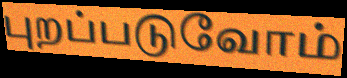
புறப்படுவோம்